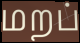
மறப்